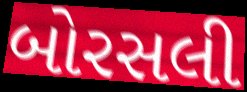
બોરસલી